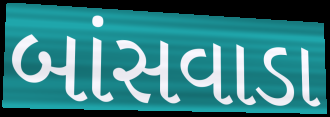
બાંસવાડા